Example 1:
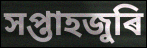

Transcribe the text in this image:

সপ্তাহজুৰি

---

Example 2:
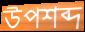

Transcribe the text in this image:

উপশব্দ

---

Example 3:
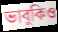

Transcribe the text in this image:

ভাবুকিও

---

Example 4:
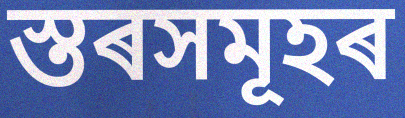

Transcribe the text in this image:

স্তৰসমূহৰ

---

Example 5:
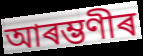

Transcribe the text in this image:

আৰম্ভণীৰ